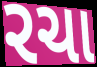
રચા